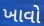
ખાવો